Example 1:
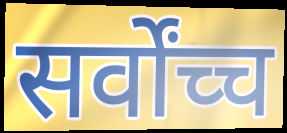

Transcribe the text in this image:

सर्वोंच्च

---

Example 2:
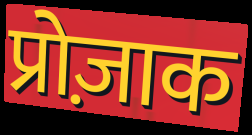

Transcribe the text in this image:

प्रोज़ाक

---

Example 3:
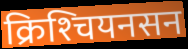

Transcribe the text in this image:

क्रिश्चियनसन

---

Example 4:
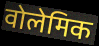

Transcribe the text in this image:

वोलेमिक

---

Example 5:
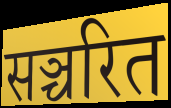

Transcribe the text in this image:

सञ्चरित